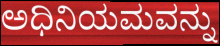
ಅಧಿನಿಯಮವನ್ನು